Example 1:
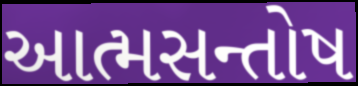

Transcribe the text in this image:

આત્મસન્તોષ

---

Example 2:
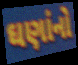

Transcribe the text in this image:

ઘણાંનો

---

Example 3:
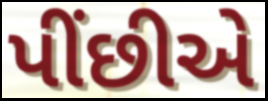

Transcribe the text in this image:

પીંછીએ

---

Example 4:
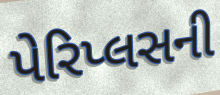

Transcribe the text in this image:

પેરિપ્લસની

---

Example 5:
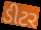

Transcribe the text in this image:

ડીટર